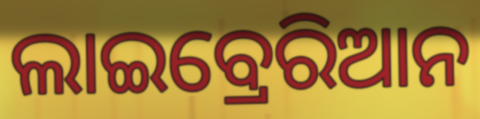
ଲାଇବ୍ରେରିଆନ